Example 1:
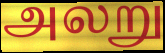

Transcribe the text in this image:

அலறு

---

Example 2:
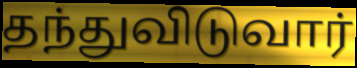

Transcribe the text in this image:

தந்துவிடுவார்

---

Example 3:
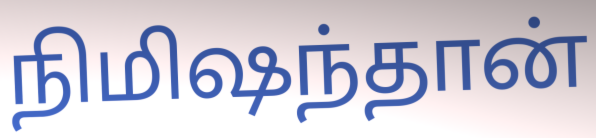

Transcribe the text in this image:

நிமிஷந்தான்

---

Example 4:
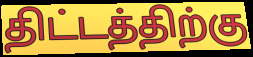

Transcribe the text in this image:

திட்டத்திற்கு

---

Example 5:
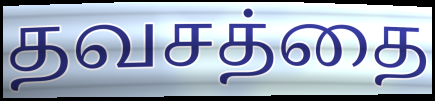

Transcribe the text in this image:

தவசத்தை